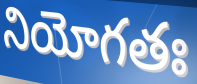
నియోగతః